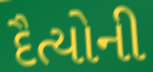
દૈત્યોની